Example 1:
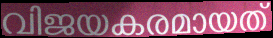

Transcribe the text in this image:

വിജയകരമായത്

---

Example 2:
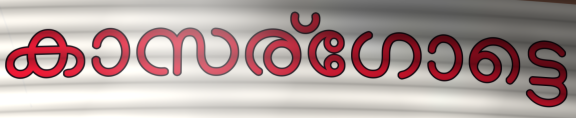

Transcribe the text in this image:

കാസര്ഗോട്ടെ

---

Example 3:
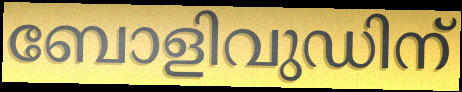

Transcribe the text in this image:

ബോളിവുഡിന്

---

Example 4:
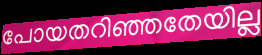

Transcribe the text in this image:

പോയതറിഞ്ഞതേയില്ല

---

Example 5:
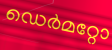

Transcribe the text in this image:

ഡെർമറ്റോ